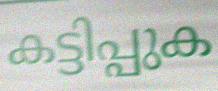
കട്ടിപ്പുക